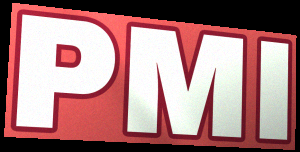
PMI